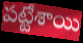
పట్టేశాయి